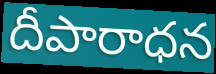
దీపారాధన